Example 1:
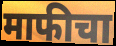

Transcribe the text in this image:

माफीचा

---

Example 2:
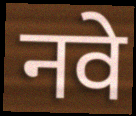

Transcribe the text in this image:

नवे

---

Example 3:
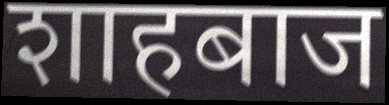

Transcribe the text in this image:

शाहबाज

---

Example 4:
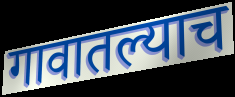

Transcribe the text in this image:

गावातल्याच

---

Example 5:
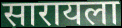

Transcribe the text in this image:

सारायला